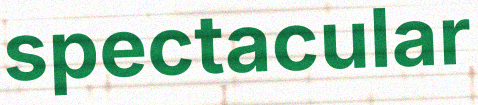
spectacular